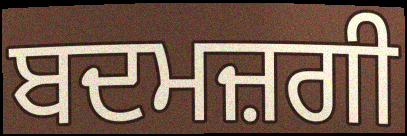
ਬਦਮਜ਼ਗੀ